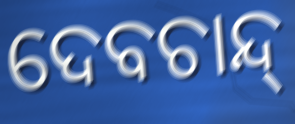
ଦେବଚାନ୍ଦ୍